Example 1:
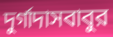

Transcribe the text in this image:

দুর্গাদাসবাবুর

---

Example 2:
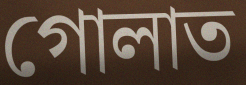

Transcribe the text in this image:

গোলাত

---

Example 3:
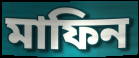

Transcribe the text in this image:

মাফিন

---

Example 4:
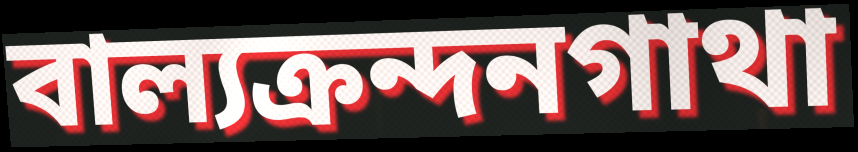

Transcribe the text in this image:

বাল্যক্রন্দনগাথা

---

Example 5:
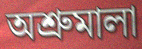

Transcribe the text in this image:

অশ্রুমালা